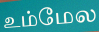
உம்மேல